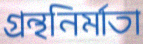
গ্রন্থনির্মাতা